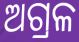
ଅଗ୍ରଳ